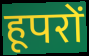
हूपरों